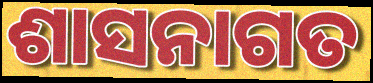
ଶାସନାଗତ